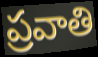
ప్రవాతి